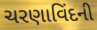
ચરણાવિંદની